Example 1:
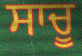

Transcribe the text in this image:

ਸਾਚੂ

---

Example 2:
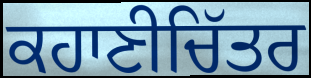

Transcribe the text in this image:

ਕਹਾਣੀਚਿੱਤਰ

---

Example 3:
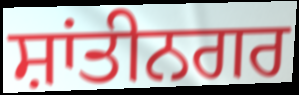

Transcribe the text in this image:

ਸ਼ਾਂਤੀਨਗਰ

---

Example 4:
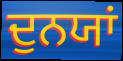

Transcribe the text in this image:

ਦੁਨਯਾਂ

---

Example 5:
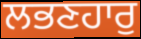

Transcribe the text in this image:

ਲਭਣਹਾਰੁ